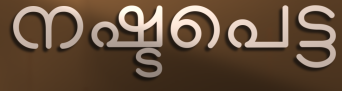
നഷ്ടപെട്ട